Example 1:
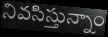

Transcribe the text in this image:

నివసిస్తున్నాం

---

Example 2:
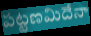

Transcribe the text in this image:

పట్టణమిదేనా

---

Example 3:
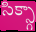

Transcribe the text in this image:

సిక్స్గా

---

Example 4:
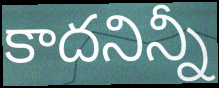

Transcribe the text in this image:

కాదనిన్నీ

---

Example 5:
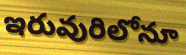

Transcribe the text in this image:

ఇరువురిలోనూ